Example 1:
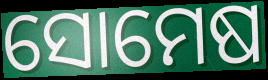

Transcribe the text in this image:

ସୋମେଷ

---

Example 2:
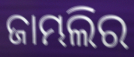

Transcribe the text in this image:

ଜାମ୍ଭଲିର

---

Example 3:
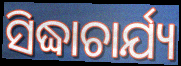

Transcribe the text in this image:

ସିଦ୍ଧାଚାର୍ଯ୍ୟ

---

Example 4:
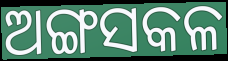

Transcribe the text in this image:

ଅଙ୍ଗସକଳ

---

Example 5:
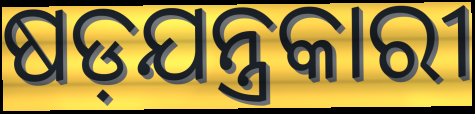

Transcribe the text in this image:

ଷଡ଼ଯନ୍ତ୍ରକାରୀ